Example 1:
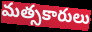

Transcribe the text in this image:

మత్సకారులు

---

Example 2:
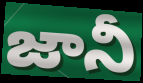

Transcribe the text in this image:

జానీ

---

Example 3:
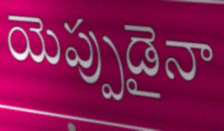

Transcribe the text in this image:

యెప్పుడైనా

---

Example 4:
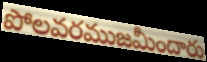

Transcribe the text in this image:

పోలవరముజమీందారు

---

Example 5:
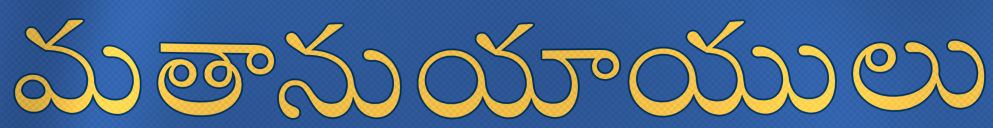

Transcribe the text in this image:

మతానుయాయులు